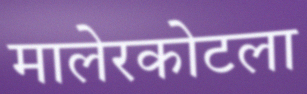
मालेरकोटला